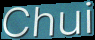
Chui